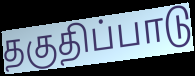
தகுதிப்பாடு